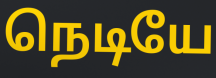
நெடியே